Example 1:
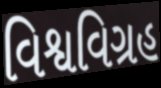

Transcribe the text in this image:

વિશ્વવિગ્રહ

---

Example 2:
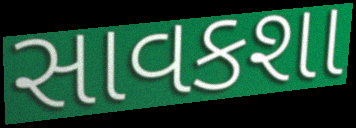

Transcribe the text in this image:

સાવકશા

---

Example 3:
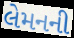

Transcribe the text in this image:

લેમનની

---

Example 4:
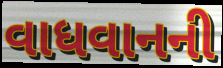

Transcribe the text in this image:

વાધવાનની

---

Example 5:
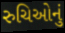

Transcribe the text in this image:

રુચિઓનું